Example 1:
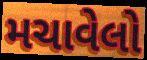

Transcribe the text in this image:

મચાવેલો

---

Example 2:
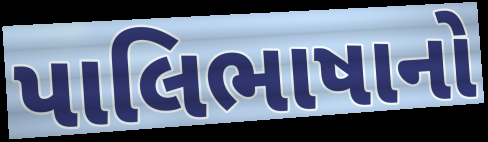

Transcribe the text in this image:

પાલિભાષાનો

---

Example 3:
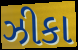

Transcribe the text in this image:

ઝીકા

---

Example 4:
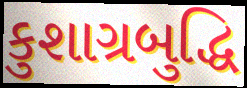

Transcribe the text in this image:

કુશાગ્રબુદ્ધિ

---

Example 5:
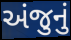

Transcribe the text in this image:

અંજુનું